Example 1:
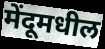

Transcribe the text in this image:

मेंदूमधील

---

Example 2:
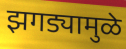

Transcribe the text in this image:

झगड्यामुळे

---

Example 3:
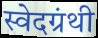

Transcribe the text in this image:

स्वेदग्रंथी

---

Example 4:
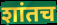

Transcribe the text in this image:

शांतच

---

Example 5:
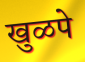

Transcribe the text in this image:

खुळपे